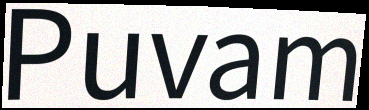
Puvam